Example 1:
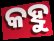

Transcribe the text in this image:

କହୁ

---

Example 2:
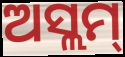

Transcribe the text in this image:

ଅସ୍ଲମ୍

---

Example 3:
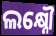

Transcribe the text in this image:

ଲକ୍ଷ୍ନୌ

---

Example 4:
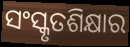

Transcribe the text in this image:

ସଂସ୍କୃତଶିକ୍ଷାର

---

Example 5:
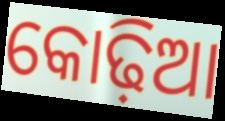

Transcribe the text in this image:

କୋଢ଼ିଆ